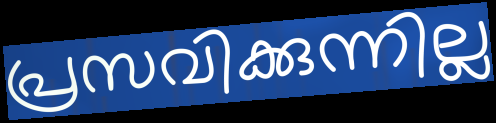
പ്രസവിക്കുന്നില്ല